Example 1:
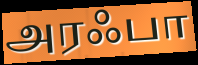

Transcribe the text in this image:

அரஃபா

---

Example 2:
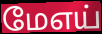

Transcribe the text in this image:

மேஎய்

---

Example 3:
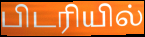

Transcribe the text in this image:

பிடரியில்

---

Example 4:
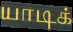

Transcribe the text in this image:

யாடிக்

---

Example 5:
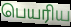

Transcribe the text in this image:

பெயரிய